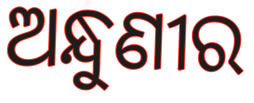
ଅନ୍ଧୁଣୀର